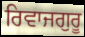
ਰਿਵਾਜਗੁਰੂ